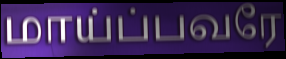
மாய்ப்பவரே